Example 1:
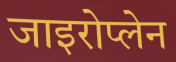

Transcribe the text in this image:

जाइरोप्लेन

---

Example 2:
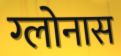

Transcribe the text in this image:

ग्लोनास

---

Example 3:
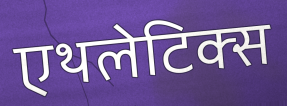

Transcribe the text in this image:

एथलेटिक्‍स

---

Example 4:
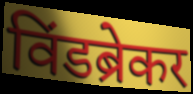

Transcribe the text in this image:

विंडब्रेकर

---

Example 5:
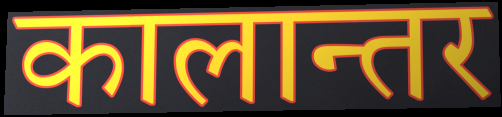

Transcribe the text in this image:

कालान्तर